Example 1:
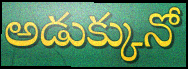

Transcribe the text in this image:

అడుక్కునో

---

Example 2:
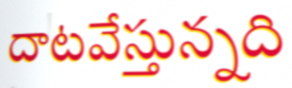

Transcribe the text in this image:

దాటవేస్తున్నది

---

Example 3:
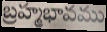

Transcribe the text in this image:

బ్రహ్మభావము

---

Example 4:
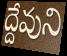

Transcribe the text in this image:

ద్దేవుని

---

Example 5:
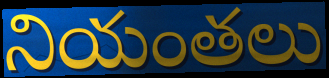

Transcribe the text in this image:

నియంతలు